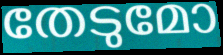
തേടുമോ